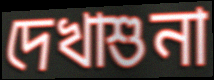
দেখাশুনা